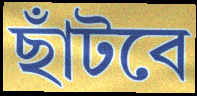
ছাঁটবে